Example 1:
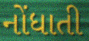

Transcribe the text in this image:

નોંધાતી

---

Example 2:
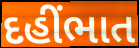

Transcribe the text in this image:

દહીંભાત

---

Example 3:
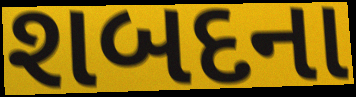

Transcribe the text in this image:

શબદના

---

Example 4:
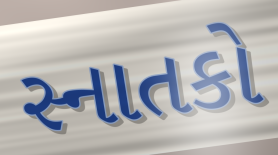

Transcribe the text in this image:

સ્નાતકો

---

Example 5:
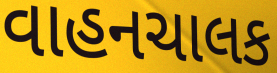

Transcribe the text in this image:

વાહનચાલક